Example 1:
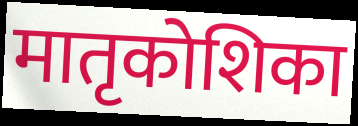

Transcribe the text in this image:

मातृकोशिका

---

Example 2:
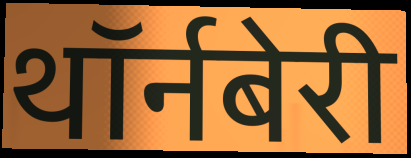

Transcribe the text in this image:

थॉर्नबेरी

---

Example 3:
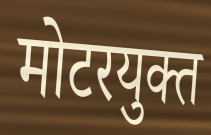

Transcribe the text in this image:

मोटरयुक्त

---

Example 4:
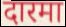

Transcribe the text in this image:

दारमा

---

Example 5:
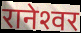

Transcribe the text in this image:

रानेश्वर